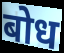
बोध